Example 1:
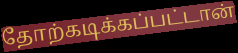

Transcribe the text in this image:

தோற்கடிக்கப்பட்டான்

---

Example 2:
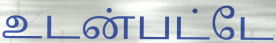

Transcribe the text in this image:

உடன்பட்டே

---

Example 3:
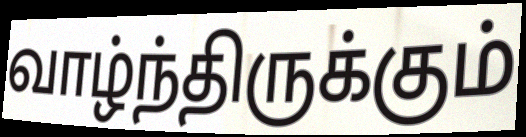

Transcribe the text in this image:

வாழ்ந்திருக்கும்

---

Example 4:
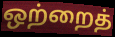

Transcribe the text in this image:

ஒற்றைத்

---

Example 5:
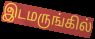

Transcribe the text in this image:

இடமருங்கில்